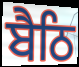
ਬੈਠਿ